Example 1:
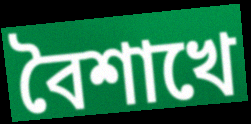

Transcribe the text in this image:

বৈশাখে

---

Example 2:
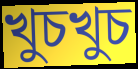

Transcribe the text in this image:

খুচখুচ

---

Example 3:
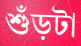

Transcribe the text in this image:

শুঁড়টা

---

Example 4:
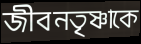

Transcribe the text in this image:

জীবনতৃষ্ণাকে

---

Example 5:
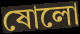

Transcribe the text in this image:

ষোলো